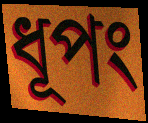
ধূপং